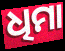
ଧିମା